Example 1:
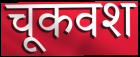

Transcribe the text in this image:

चूकवश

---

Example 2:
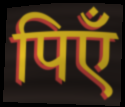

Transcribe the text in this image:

पिएँ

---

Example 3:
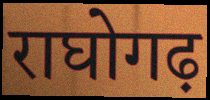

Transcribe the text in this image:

राघोगढ़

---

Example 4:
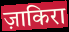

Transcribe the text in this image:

ज़ाकिरा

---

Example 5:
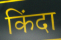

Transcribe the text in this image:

किंदा